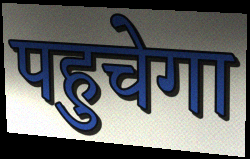
पहुचेगा